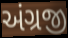
અંગ્રજી